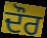
ਦੌਰ